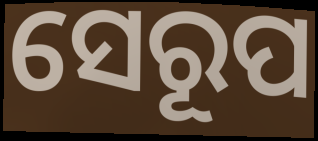
ସେରୂପ